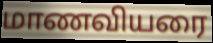
மாணவியரை